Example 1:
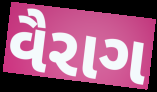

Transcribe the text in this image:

વૈરાગ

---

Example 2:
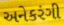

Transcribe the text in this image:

અનેકરંગી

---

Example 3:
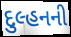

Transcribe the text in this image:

દુલ્હનની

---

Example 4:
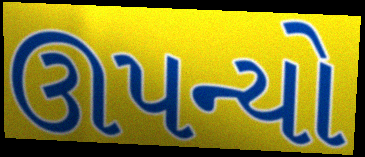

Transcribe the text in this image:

ઊપન્યો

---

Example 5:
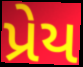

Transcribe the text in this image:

પ્રેય